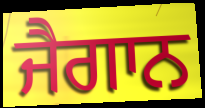
ਜੈਗਾਨ